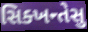
સિક્ખન્તેસુ